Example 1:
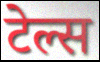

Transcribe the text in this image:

टेल्स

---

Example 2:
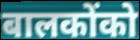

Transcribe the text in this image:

बालकोंको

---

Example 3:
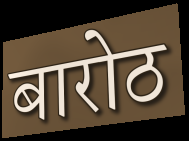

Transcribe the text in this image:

बारोठ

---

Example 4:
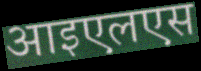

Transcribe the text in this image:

आइएलएस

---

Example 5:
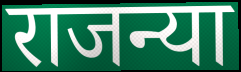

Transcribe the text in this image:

राजन्या